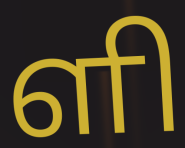
ளி